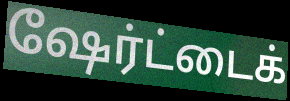
ஷேர்ட்டைக்